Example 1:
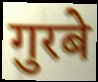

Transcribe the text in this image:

गुरबे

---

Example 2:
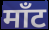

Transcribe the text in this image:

माँट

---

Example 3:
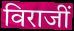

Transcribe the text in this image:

विराजीं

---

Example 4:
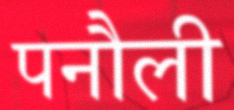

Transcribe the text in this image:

पनौली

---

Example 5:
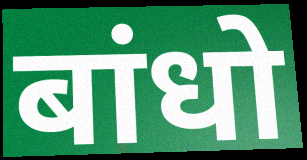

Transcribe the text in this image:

बांधो